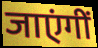
जाएंगीं